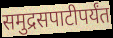
समुद्रसपाटीपर्यंत